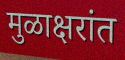
मुळाक्षरांत